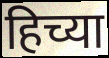
हिच्या